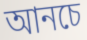
আনচে